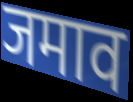
जमाव